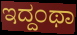
ಇದ್ದಂಥಾ